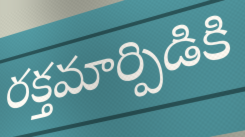
రక్తమార్పిడికి